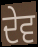
ਦੇਵ